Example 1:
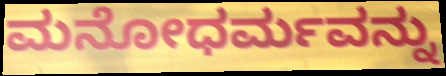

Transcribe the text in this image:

ಮನೋಧರ್ಮವನ್ನು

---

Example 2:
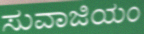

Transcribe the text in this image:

ಸುವಾಜಿಯಂ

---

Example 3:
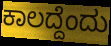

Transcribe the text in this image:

ಕಾಲದ್ದೆಂದು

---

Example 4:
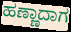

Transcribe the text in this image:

ಹಣ್ಣಾದಾಗ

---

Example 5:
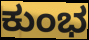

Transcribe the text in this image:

ಕುಂಭ